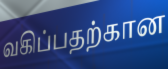
வகிப்பதற்கான